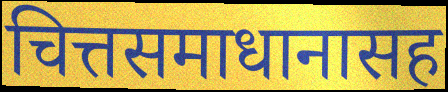
चित्तसमाधानासह